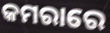
କମରାରେ